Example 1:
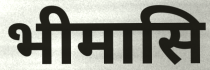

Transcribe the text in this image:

भीमासि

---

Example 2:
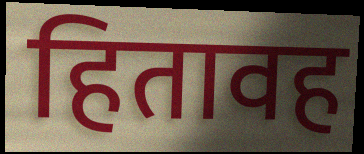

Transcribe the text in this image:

हितावह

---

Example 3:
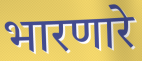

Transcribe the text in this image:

भारणारे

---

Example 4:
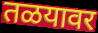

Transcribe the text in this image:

तळयावर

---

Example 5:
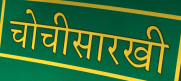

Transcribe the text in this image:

चोचीसारखी